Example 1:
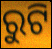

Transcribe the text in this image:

ରୁଟି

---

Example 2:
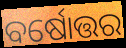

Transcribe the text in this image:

ବର୍ଷୋତ୍ତର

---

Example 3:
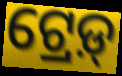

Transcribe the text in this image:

ଟ୍ରେଡ଼୍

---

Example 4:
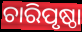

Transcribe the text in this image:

ଚାରିପୃଷ୍ଠା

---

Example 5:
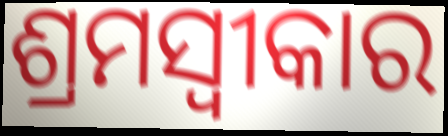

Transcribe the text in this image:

ଶ୍ରମସ୍ୱୀକାର